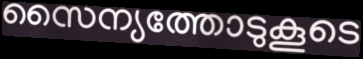
സൈന്യത്തോടുകൂടെ